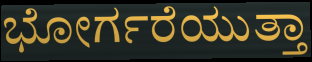
ಭೋರ್ಗರೆಯುತ್ತಾ